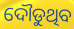
ଦୌଡୁଥିବ